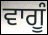
ਵਾਗੂੰ